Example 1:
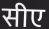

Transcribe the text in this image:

सीए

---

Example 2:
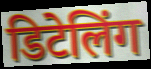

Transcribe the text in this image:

डिटेलिंग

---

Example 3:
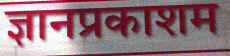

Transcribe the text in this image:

ज्ञानप्रकाशम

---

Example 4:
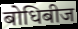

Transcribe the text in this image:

बोधिबीज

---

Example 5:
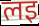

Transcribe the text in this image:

लइ